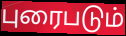
புரைபடும்